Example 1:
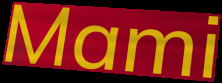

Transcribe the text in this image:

Mami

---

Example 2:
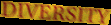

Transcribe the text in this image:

DIVERSITY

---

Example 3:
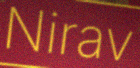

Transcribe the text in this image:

Nirav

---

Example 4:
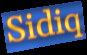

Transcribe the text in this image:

Sidiq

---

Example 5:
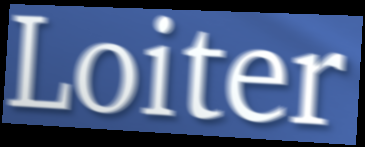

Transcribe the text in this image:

Loiter